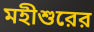
মহীশুরের